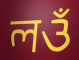
লওঁ